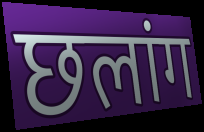
छलांग